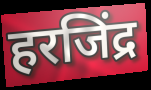
हरजिंद्र